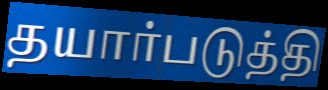
தயார்படுத்தி